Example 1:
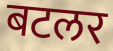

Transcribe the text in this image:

बटलर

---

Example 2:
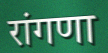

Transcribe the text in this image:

रांगणा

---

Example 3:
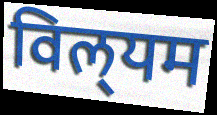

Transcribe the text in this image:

विल्यम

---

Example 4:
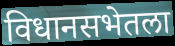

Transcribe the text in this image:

विधानसभेतला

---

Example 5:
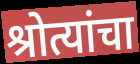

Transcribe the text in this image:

श्रोत्यांचा